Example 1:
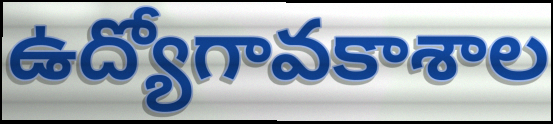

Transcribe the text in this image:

ఉద్యోగావకాశాల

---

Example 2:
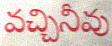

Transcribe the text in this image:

వచ్చినీవు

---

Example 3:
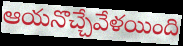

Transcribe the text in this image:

ఆయనొచ్చేవేళయింది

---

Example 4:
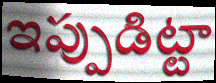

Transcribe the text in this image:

ఇప్పుడిట్టా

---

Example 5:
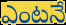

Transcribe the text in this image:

ఎంటనే